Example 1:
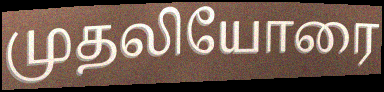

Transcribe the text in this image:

முதலியோரை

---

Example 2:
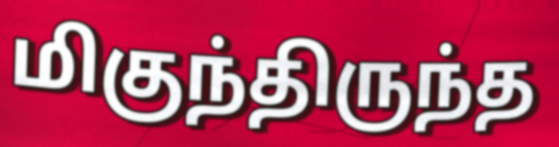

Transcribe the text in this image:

மிகுந்திருந்த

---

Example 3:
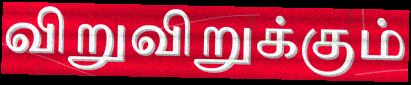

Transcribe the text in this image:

விறுவிறுக்கும்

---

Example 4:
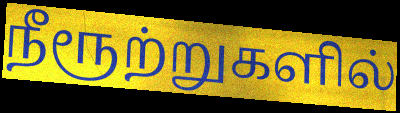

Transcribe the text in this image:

நீரூற்றுகளில்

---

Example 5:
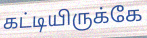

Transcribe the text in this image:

கட்டியிருக்கே